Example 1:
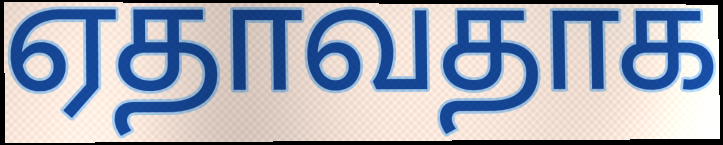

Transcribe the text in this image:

ஏதாவதாக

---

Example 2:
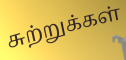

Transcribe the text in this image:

சுற்றுக்கள்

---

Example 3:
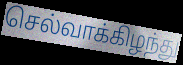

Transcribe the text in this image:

செல்வாக்கிழந்து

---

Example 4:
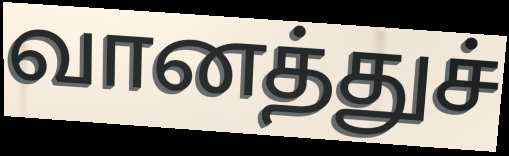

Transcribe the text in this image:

வானத்துச்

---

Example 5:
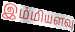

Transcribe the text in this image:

இம்மியளவு